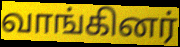
வாங்கினர்